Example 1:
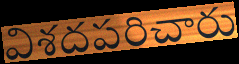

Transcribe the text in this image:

విశదపరిచారు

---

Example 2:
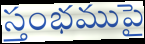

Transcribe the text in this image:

స్తంభముపై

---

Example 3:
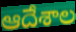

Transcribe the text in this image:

ఆదేశాల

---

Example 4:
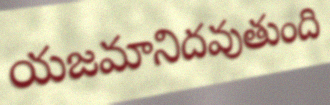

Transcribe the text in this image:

యజమానిదవుతుంది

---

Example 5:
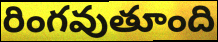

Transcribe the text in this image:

రింగవుతూంది